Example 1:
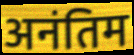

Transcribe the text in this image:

अनंतिम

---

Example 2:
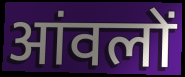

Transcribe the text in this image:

आंवलों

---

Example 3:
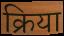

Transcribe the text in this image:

क्रिया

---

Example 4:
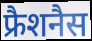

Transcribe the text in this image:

फ्रैशनैस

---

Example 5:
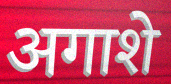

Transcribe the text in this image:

अगाशे